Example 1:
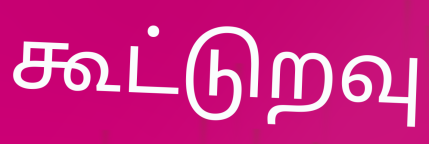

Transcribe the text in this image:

கூட்டுறவு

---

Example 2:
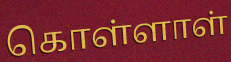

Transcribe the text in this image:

கொள்ளாள்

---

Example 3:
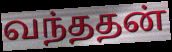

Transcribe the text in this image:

வந்ததன்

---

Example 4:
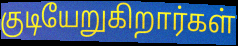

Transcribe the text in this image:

குடியேறுகிறார்கள்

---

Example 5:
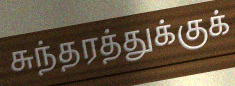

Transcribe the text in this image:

சுந்தரத்துக்குக்